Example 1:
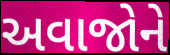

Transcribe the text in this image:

અવાજોને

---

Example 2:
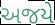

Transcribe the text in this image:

અજયે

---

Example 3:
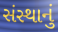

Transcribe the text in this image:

સંસ્થાનું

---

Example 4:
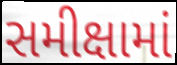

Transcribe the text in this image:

સમીક્ષામાં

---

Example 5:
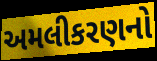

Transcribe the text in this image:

અમલીકરણનો